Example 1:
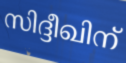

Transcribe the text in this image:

സിദ്ദീഖിന്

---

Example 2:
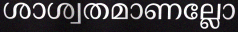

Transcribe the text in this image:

ശാശ്വതമാണല്ലോ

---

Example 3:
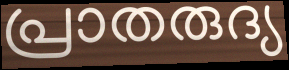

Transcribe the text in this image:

പ്രാതരുദ്യ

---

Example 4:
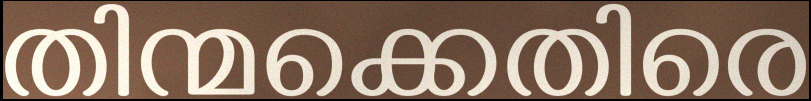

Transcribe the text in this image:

തിന്മക്കെതിരെ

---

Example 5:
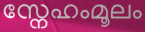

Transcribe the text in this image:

സ്നേഹംമൂലം